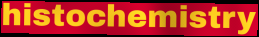
histochemistry